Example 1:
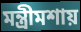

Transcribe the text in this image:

মন্ত্রীমশায়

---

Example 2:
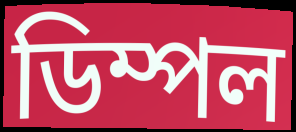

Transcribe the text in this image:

ডিম্পল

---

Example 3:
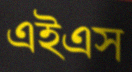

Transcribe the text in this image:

এইএস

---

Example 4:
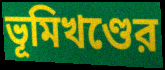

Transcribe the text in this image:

ভূমিখণ্ডের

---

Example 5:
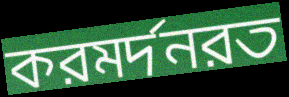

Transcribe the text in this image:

করমর্দনরত